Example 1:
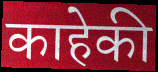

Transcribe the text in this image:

काहेकी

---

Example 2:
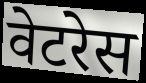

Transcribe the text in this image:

वेटरेस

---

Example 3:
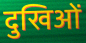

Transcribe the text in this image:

दुखिओं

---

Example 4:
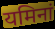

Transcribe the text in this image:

यमिनां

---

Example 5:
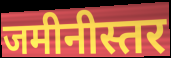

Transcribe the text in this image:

जमीनीस्तर